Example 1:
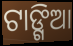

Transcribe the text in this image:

ଟାଙ୍ଗିଆ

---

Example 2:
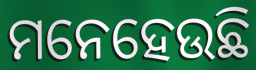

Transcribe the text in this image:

ମନେହେଉଛି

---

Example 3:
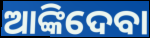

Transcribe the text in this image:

ଆଙ୍କିଦେବା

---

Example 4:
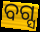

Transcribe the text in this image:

ବଗ୍ସ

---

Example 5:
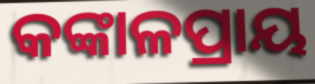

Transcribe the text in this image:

କଙ୍କାଳପ୍ରାୟ